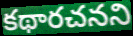
కథారచనని